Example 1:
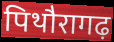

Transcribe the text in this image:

पिथौरागढ़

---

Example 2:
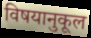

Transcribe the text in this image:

विषयानुकूल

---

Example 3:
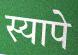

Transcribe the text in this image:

स्यापे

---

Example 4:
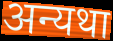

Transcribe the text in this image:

अन्यथा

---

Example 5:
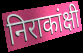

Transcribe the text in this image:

निराकांक्षी